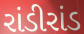
રાંડીરાંડ